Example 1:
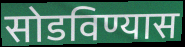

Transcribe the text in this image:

सोडविण्यास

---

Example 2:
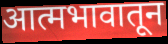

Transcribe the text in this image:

आत्मभावातून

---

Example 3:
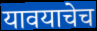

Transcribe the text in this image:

यावयाचेच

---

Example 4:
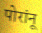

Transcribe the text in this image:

पोरांनू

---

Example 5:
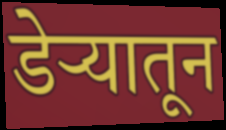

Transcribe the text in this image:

डेऱ्यातून